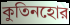
কুতিনহোর